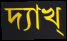
দ্যাখ্